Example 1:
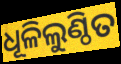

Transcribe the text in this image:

ଧୂଳିଲୁଣ୍ଠିତ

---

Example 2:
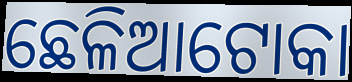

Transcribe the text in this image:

ଛେଳିଆଟୋକା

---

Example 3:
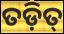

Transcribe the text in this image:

ତଡ଼ିତ୍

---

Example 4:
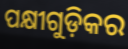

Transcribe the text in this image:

ପକ୍ଷୀଗୁଡ଼ିକର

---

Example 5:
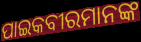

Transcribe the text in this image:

ପାଇକବୀରମାନଙ୍କ